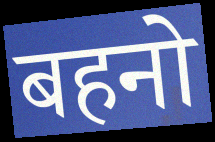
बहनो